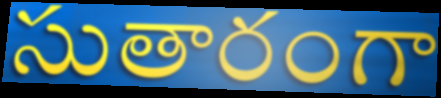
సుతారంగా